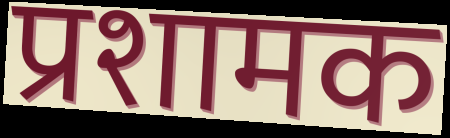
प्रशामक